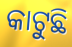
କାଟୁଛି